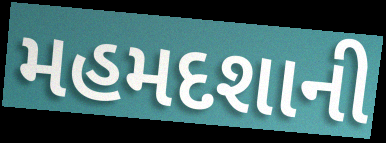
મહમદશાની